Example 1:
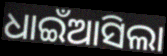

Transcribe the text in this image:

ଧାଇଁଆସିଲା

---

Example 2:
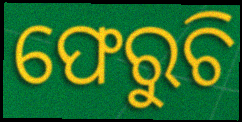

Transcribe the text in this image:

ଫେରୁଚି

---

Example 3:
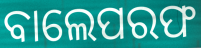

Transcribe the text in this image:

ବାଲେପରଫ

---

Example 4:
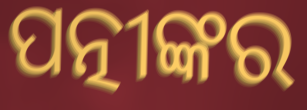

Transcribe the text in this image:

ପତ୍ନୀଙ୍କର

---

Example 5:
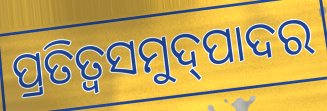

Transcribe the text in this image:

ପ୍ରତିତ୍ଵସମୁଦ୍‌ପାଦର